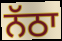
ਨੱਠਾ